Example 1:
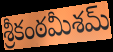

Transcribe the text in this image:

శ్రీకంఠమీశమ్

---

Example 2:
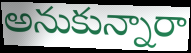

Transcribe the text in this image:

అనుకున్నారా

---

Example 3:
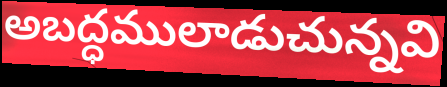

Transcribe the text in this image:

అబద్ధములాడుచున్నవి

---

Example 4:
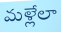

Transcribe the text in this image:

మళ్లేలా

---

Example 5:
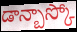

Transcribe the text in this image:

డాన్బాస్కో